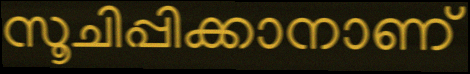
സൂചിപ്പിക്കാനാണ്